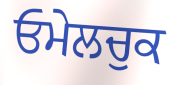
ਓਮੇਲਚੁਕ